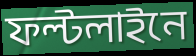
ফল্টলাইনে